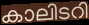
കാലിടറി